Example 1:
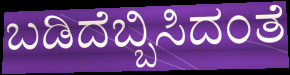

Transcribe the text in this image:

ಬಡಿದೆಬ್ಬಿಸಿದಂತೆ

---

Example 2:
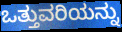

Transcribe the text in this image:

ಒತ್ತುವರಿಯನ್ನು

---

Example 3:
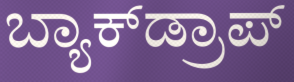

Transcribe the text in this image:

ಬ್ಯಾಕ್‌ಡ್ರಾಪ್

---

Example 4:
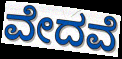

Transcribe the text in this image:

ವೇದವೆ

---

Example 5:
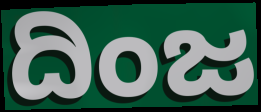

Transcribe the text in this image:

ದಿಂಜ